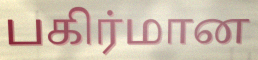
பகிர்மான